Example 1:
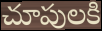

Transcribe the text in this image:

చూపులకి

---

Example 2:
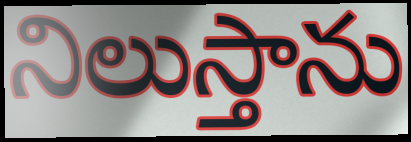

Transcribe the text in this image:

నిలుస్తాను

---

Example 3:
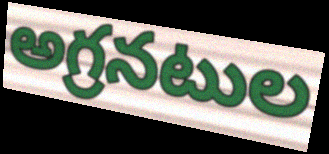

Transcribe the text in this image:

అగ్రనటుల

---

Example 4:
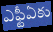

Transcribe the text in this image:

ఎఫ్టీఏకు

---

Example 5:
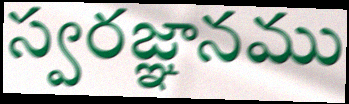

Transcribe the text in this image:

స్వరజ్ఞానము